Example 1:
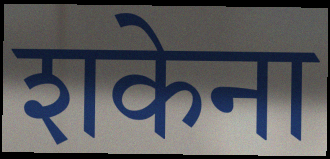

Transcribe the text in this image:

शकेना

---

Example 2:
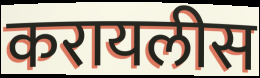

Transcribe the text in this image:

करायलीस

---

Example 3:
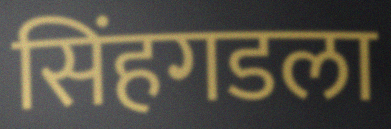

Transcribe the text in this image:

सिंहगडला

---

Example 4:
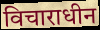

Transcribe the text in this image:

विचाराधीन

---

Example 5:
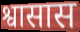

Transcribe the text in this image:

श्वासास